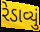
રેડાવ્યું